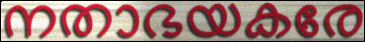
നതാഭയകരേ